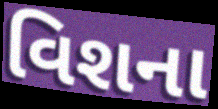
વિશના